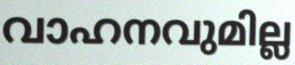
വാഹനവുമില്ല